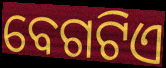
ବେଗଟିଏ